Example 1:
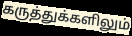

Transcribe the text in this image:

கருத்துக்களிலும்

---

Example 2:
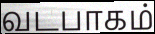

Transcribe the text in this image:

வடபாகம்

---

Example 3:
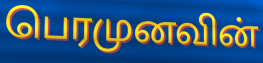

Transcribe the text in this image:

பெரமுனவின்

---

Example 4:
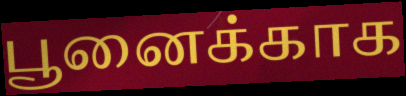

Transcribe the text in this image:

பூனைக்காக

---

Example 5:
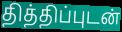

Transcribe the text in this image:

தித்திப்புடன்